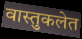
वास्तुकलेत